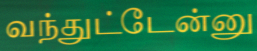
வந்துட்டேன்னு